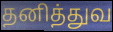
தனித்துவ